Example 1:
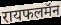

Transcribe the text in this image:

रायफलमॅन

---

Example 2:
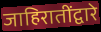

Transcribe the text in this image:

जाहिरातींद्वारे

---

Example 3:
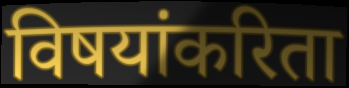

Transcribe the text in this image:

विषयांकरिता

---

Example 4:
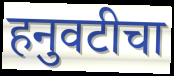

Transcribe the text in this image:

हनुवटीचा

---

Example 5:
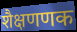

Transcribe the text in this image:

शैक्षणणक